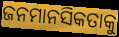
ଜନମାନସିକତାକୁ